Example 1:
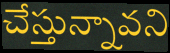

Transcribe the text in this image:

చేస్తున్నావని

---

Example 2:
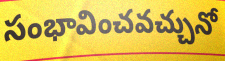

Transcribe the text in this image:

సంభావించవచ్చునో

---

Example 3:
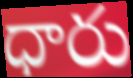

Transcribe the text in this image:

ధారు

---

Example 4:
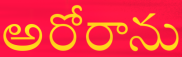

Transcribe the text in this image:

అరోరాను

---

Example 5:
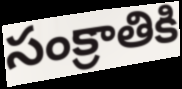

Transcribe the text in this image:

సంక్రాతికి